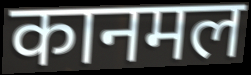
कानमल